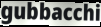
gubbacchi